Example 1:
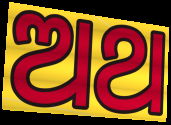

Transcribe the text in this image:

ଅଥ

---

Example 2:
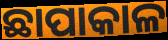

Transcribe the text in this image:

ଛାପାକାଳ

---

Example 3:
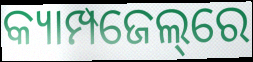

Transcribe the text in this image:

କ୍ୟାମ୍ପଜେଲ୍‌ରେ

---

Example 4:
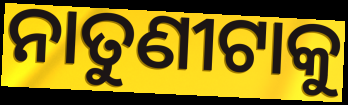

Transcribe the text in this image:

ନାତୁଣୀଟାକୁ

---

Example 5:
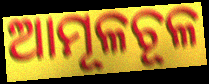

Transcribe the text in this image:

ଆମୂଳଚୂଳ